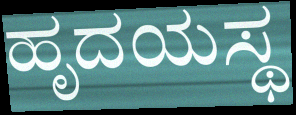
ಹೃದಯಸ್ಥ